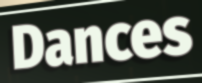
Dances